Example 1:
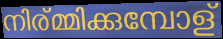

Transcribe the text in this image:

നിര്മ്മിക്കുമ്പോള്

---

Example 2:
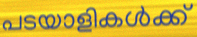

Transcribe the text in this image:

പടയാളികൾക്ക്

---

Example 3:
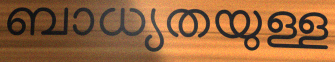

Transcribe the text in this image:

ബാധ്യതയുള്ള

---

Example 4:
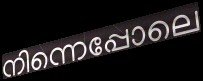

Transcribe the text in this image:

നിന്നെപ്പോലെ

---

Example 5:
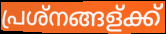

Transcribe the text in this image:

പ്രശ്നങ്ങള്ക്ക്